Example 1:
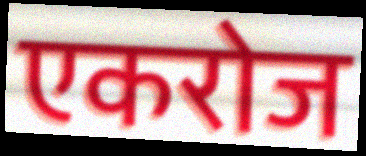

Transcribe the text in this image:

एकरोज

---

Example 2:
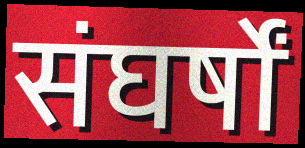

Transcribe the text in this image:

संघर्षों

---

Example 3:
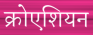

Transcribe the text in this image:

क्रोएशियन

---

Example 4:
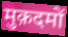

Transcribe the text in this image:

मुक़दमों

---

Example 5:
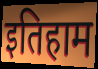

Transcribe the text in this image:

इतिहाम